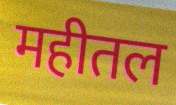
महीतल